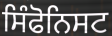
ਸਿੰਫੋਨਿਸਟ